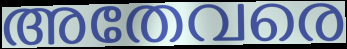
അതേവരെ